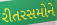
રીતરસમોને